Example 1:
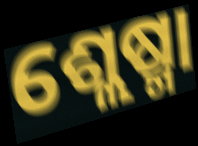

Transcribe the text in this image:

ଶ୍ଲେଷ୍ମା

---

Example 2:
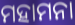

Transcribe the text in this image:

ମହାମନା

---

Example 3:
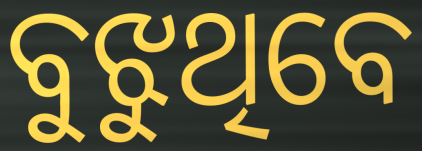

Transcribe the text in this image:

ବୁଝୁଥିବେ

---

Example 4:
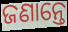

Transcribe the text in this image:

ଜଣାନ୍ତେ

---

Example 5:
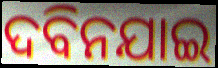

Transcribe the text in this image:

ଦବିନଯାଇ